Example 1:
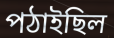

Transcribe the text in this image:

পঠাইছিল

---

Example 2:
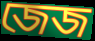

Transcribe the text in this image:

জেজ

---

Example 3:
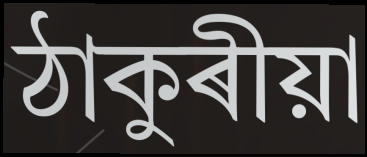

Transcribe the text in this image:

ঠাকুৰীয়া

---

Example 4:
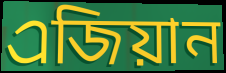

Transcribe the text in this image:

এজিয়ান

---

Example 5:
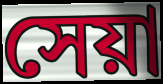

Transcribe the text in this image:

সেয়া